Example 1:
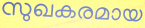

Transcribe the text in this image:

സുഖകരമായ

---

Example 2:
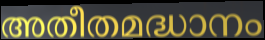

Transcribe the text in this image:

അതീതമദ്ധാനം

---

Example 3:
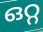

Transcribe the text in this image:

ഒറ്റ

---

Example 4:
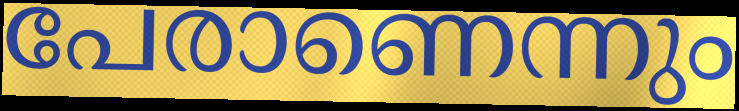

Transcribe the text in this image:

പേരാണെന്നും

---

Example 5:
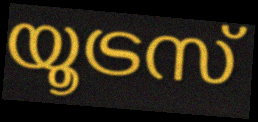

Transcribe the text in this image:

യൂട്രസ്